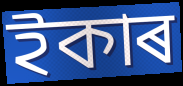
ইকাৰ